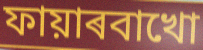
ফায়াৰবাখো